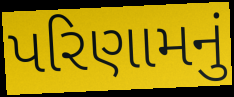
પરિણામનું